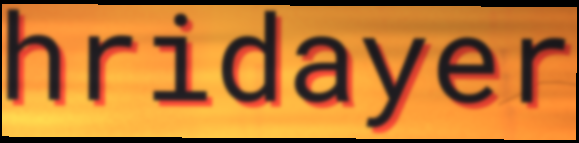
hridayer